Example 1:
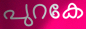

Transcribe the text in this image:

പുറകേ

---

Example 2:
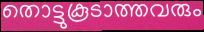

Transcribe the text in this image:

തൊട്ടുകൂടാത്തവരും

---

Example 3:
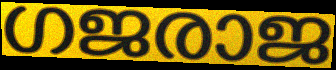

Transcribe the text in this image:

ഗജരാജ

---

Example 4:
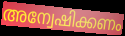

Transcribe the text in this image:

അന്വേഷിക്കണം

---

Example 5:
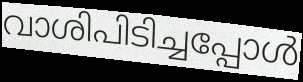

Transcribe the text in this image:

വാശിപിടിച്ചപ്പോൾ